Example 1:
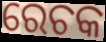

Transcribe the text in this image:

ରେଚକ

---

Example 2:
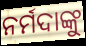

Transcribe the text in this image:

ନର୍ମଦାଙ୍କୁ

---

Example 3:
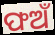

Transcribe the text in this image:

ଫଅଁ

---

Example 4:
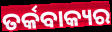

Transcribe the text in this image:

ତର୍କବାକ୍ୟର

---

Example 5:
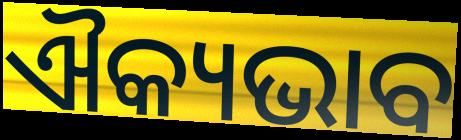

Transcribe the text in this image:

ଐକ୍ୟଭାବ